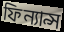
ফিন্যান্স